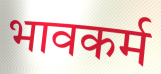
भावकर्म